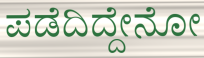
ಪಡೆದಿದ್ದೇನೋ